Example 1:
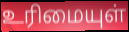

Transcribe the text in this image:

உரிமையுள்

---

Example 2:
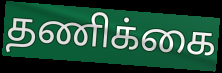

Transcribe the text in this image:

தணிக்கை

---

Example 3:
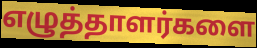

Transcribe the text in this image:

எழுத்தாளர்களை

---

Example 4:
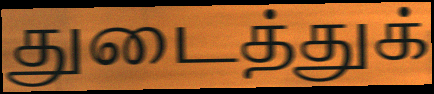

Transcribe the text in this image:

துடைத்துக்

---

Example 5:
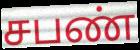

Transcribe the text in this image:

சபண்